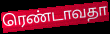
ரெண்டாவதா